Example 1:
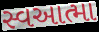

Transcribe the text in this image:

સ્વઆત્મા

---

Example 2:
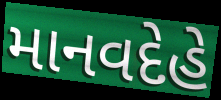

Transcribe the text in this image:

માનવદેહે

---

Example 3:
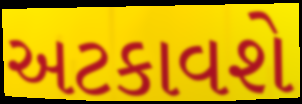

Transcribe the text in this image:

અટકાવશે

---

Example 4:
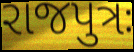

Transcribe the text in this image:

રાજપુત્રઃ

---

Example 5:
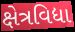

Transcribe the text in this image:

ક્ષેત્રવિદ્યા